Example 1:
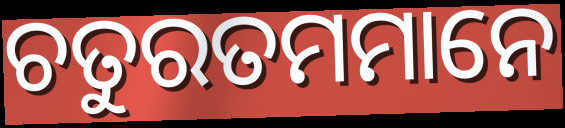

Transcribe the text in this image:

ଚତୁରତମମାନେ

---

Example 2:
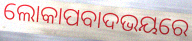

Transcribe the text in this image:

ଲୋକାପବାଦଭୟରେ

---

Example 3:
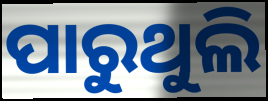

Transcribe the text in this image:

ପାରୁଥୁଲି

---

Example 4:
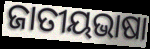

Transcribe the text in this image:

ଜାତୀୟଭାଷା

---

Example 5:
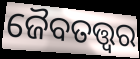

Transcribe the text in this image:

ଜୈବତତ୍ତ୍ୱର